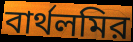
বার্থলমির